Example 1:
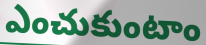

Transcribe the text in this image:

ఎంచుకుంటాం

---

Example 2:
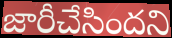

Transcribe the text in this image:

జారీచేసిందని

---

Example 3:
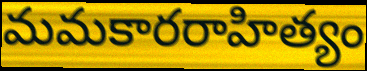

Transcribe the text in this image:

మమకారరాహిత్యం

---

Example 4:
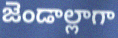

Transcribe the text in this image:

జెండాల్లాగా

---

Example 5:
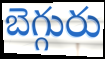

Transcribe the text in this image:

బెగ్గురు